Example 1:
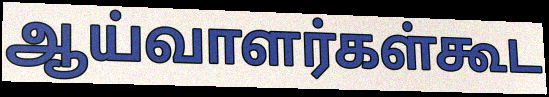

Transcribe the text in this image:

ஆய்வாளர்கள்கூட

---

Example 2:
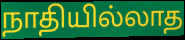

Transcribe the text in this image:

நாதியில்லாத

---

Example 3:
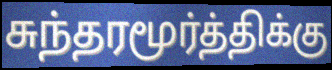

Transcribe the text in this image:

சுந்தரமூர்த்திக்கு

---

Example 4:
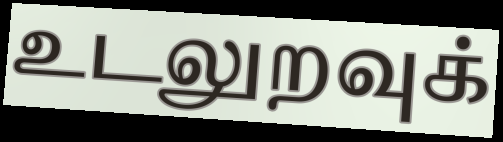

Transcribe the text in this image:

உடலுறவுக்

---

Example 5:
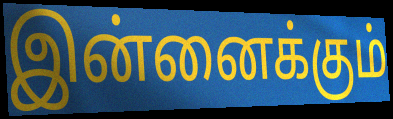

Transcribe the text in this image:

இன்னைக்கும்